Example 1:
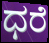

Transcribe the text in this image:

ಧರೆ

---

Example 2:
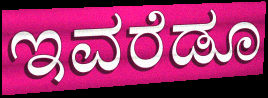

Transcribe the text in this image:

ಇವರೆಡೂ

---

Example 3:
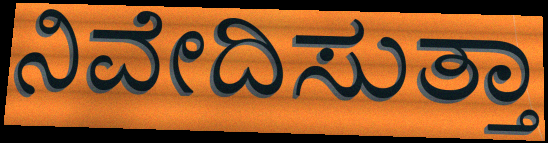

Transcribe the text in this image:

ನಿವೇದಿಸುತ್ತಾ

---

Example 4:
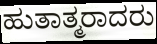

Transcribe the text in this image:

ಹುತಾತ್ಮರಾದರು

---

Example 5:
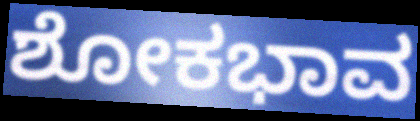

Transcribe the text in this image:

ಶೋಕಭಾವ